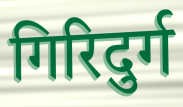
गिरिदुर्ग